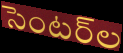
సెంటర్‌ల